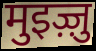
मुइज़्ज़ु